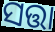
ସତ୍ତା